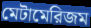
মেটামেরিজম